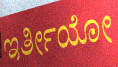
ಇರ್ತೀಯೋ